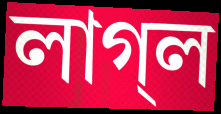
লাগ্‌ল